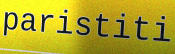
paristiti